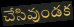
చేసివుండక